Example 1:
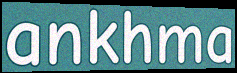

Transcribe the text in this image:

ankhma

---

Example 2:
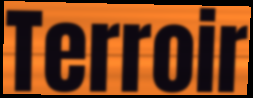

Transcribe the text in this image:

Terroir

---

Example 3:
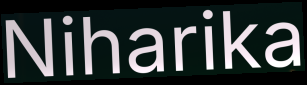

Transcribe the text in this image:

Niharika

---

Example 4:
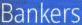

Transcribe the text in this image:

Bankers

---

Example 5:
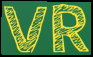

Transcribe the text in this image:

VR